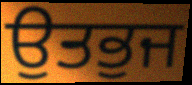
ਉਤਭੁਜ